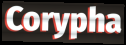
Corypha